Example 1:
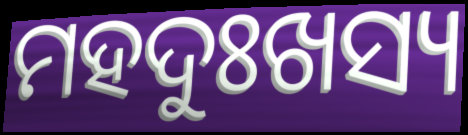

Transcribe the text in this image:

ମହଦୁଃଖସ୍ୟ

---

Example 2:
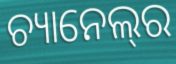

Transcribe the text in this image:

ଚ୍ୟାନେଲ୍‌ର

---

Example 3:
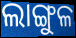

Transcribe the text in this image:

ଲାଙ୍ଗୁଳ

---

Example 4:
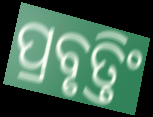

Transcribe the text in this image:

ପ୍ରବୃତ୍ତିଂ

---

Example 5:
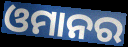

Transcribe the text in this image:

ଓମାନର